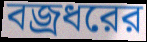
বজ্রধরের